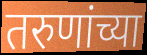
तरुणांच्या